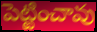
పెట్టించావు